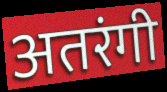
अतरंगी